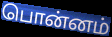
பொன்னம்